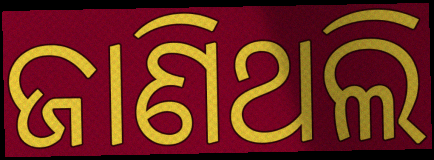
ଜାଣିଥଲି